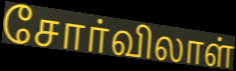
சோர்விலாள்